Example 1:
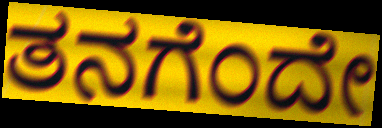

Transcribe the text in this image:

ತನಗೆಂದೇ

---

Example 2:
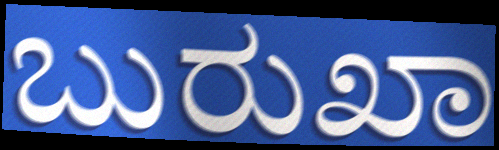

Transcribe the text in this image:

ಬುರುಖಾ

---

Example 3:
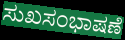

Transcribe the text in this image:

ಸುಖಸಂಭಾಷಣೆ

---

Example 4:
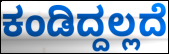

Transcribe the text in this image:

ಕಂಡಿದ್ದಲ್ಲದೆ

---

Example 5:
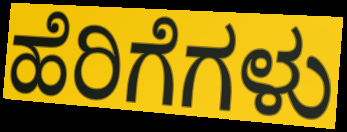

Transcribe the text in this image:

ಹೆರಿಗೆಗಳು